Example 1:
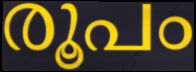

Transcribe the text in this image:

രൂപം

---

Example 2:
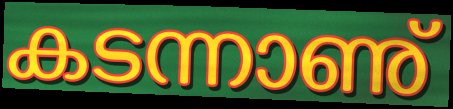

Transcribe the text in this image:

കടന്നാണു്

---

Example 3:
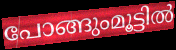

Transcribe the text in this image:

പോങ്ങുംമൂട്ടിൽ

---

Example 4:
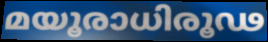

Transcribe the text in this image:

മയൂരാധിരൂഢ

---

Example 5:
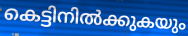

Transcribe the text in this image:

കെട്ടിനിൽക്കുകയും